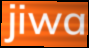
jiwa